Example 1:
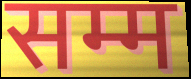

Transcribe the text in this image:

सम्म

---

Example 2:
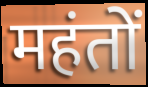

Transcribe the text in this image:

महंतों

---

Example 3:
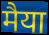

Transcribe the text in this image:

मैया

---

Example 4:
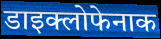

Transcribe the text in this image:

डाइक्लोफेनाक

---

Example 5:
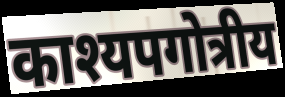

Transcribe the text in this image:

काश्यपगोत्रीय